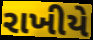
રાખીયે